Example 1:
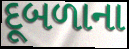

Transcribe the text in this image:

દૂબળાના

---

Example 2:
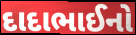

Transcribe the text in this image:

દાદાભાઈનો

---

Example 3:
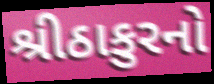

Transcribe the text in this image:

શ્રીઠાકુરનો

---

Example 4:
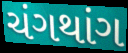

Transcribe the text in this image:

ચંગથાંગ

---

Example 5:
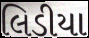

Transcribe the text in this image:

લિડીયા